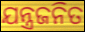
ଯନ୍ତ୍ରଜନିତ